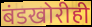
बंडखोरीही